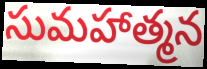
సుమహాత్మన